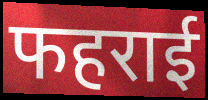
फहराई